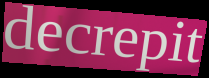
decrepit